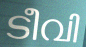
ടീവി